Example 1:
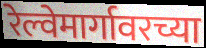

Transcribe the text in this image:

रेल्वेमार्गावरच्या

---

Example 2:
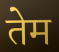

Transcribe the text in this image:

तेम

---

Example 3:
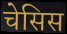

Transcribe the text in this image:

चेसिस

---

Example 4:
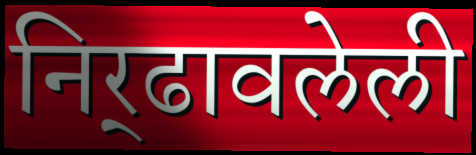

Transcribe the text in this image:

निर्ढावलेली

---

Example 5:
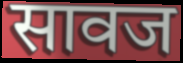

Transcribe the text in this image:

सावज